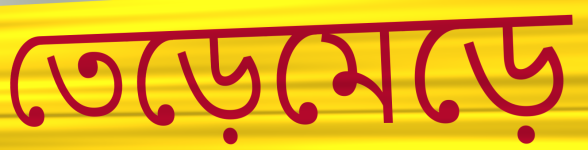
তেড়েমেড়ে